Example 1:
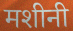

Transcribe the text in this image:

मशीनी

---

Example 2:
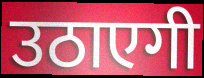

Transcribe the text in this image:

उठाएगी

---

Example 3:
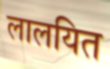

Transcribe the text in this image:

लालयित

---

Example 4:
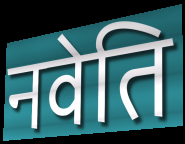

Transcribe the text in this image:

नवेति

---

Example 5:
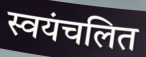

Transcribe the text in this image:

स्वयंचलित